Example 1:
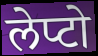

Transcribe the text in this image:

लेप्टो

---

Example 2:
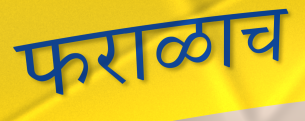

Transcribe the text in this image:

फराळाच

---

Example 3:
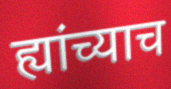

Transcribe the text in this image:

ह्यांच्याच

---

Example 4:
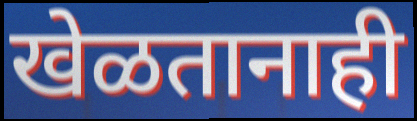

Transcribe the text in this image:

खेळतानाही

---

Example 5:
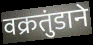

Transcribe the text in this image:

वक्रतुंडाने